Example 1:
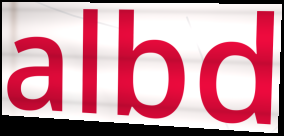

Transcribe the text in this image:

albd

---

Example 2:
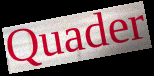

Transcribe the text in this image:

Quader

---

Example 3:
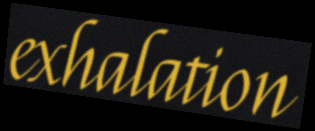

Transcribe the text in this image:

exhalation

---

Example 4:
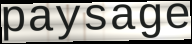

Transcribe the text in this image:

paysage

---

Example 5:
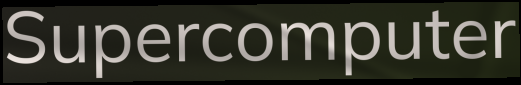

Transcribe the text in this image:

Supercomputer